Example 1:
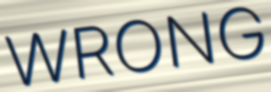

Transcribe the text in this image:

WRONG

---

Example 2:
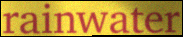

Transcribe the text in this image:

rainwater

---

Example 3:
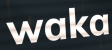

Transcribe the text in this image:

waka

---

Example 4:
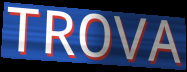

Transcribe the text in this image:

TROVA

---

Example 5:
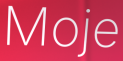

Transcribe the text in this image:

Moje